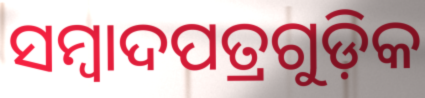
ସମ୍ୱାଦପତ୍ରଗୁଡ଼ିକ